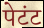
पेटंट